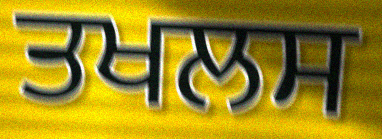
ਤਖਲਸ